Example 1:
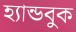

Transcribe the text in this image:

হ্যান্ডবুক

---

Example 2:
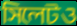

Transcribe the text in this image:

সিলেটও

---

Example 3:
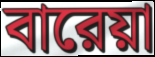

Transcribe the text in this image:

বারেয়া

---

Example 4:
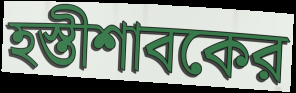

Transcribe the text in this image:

হস্তীশাবকের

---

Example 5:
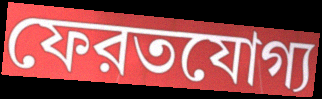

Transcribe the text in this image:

ফেরতযোগ্য